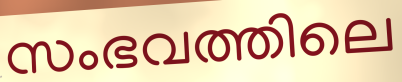
സംഭവത്തിലെ